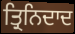
ਤ੍ਰਿਨਿਦਾਦ